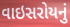
વાઇસરોયનું